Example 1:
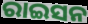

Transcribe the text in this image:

ରାଇସନ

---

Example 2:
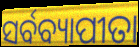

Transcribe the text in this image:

ସର୍ବବ୍ୟାପୀତା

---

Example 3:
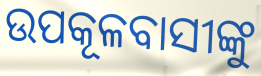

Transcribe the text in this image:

ଉପକୂଳବାସୀଙ୍କୁ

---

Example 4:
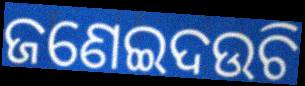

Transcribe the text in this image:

ଜଣେଇଦଉଚି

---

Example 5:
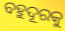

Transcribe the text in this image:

ବହୁଦୂରକୁ